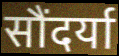
सौंदर्या